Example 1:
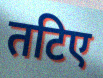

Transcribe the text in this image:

तटिए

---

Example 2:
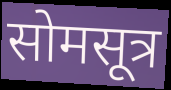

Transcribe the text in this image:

सोमसूत्र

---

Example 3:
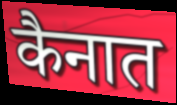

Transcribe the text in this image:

कैनात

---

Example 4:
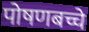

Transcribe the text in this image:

पोषणबच्चे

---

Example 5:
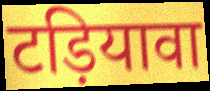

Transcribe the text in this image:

टड़ियावा